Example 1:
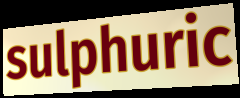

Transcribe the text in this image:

sulphuric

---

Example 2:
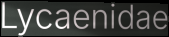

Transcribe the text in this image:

Lycaenidae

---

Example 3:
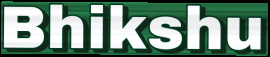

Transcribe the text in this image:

Bhikshu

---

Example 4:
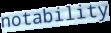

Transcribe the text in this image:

notability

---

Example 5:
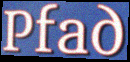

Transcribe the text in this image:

Pfad